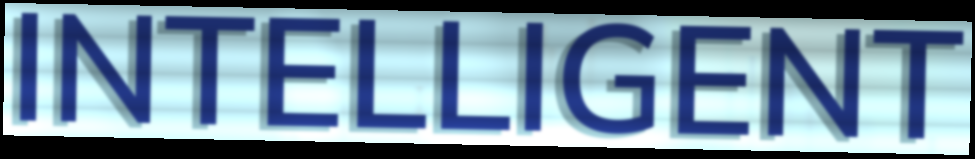
INTELLIGENT